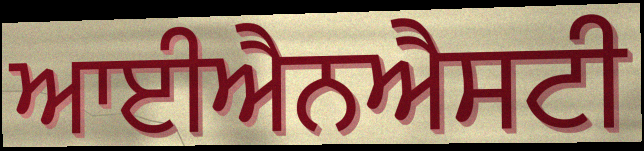
ਆਈਐਨਐਸਟੀ